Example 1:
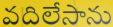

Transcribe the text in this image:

వదిలేసాను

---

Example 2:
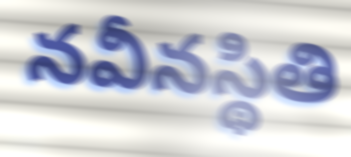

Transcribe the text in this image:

నవీనస్థితి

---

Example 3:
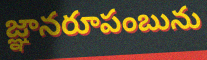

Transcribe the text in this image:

జ్ఞానరూపంబును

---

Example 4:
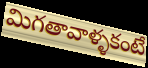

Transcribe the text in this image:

మిగతావాళ్ళకంటే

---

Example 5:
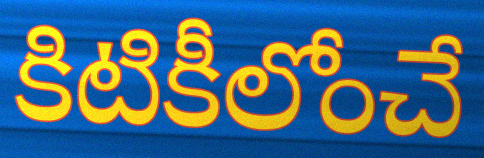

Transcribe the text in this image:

కిటికీలోంచే